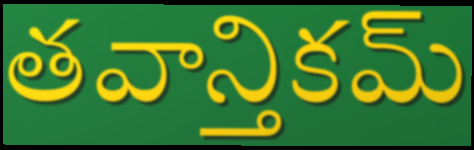
తవాన్తికమ్